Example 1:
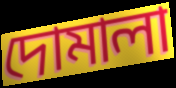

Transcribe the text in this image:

দোমালা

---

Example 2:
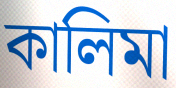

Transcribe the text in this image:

কালিমা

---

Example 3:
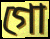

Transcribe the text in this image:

গো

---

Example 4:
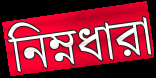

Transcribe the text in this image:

নিম্নধারা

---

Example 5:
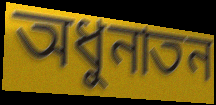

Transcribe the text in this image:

অধুনাতন